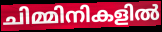
ചിമ്മിനികളിൽ